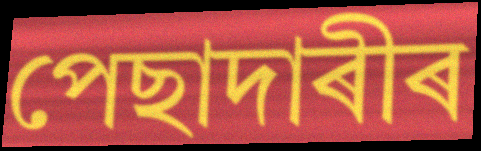
পেছাদাৰীৰ